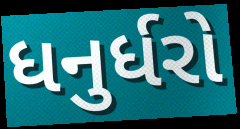
ધનુર્ધરો